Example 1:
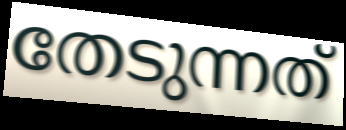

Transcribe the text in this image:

തേടുന്നത്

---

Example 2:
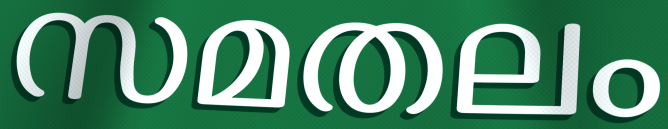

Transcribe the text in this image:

സമതലം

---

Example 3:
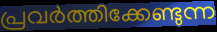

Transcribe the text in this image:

പ്രവർത്തിക്കേണ്ടുന്ന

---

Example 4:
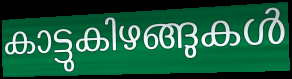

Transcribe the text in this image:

കാട്ടുകിഴങ്ങുകൾ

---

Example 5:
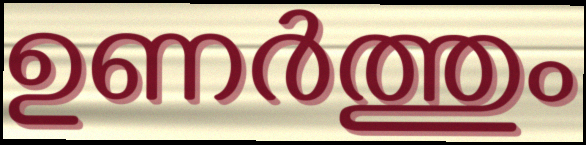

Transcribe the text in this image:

ഉണർത്തും